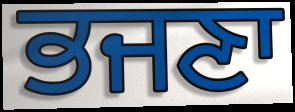
ਭਜਣਾ